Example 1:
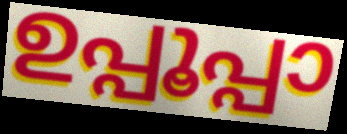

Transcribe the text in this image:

ഉപ്പൂപ്പാ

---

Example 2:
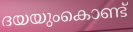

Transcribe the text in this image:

ദയയുംകൊണ്ട്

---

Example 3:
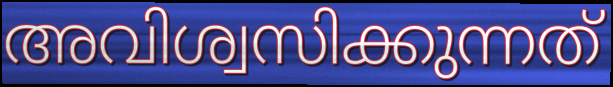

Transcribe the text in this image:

അവിശ്വസിക്കുന്നത്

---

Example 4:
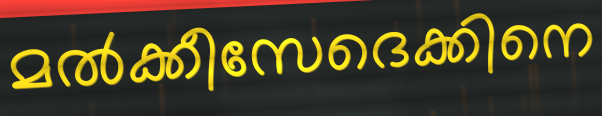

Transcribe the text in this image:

മൽക്കീസേദെക്കിനെ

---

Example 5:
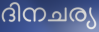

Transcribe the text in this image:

ദിനചര്യ